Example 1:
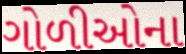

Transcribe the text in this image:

ગોળીઓના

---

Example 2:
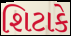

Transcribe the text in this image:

શિટાકે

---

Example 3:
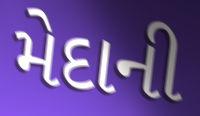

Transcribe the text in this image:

મેદાની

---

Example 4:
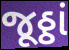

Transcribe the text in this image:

જૂઠ્ઠાં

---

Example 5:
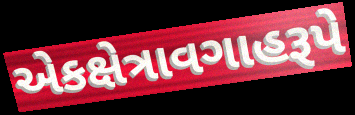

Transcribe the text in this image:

એકક્ષેત્રાવગાહરૂપે